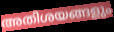
അതിശയങ്ങളും